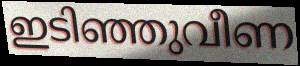
ഇടിഞ്ഞുവീണ